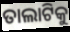
ତାଲାଟିକୁ